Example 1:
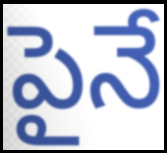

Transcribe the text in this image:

పైనే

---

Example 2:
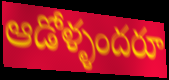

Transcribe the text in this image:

ఆడోళ్ళందరూ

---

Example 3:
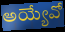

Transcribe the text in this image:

అయ్యేవో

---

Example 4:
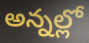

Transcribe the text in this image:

అన్నల్లో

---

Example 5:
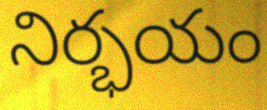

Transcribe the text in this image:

నిర్భయం